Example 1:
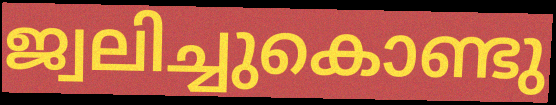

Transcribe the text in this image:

ജ്വലിച്ചുകൊണ്ടു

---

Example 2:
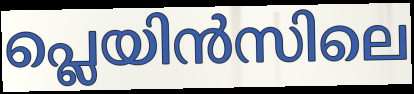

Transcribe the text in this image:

പ്ലെയിൻസിലെ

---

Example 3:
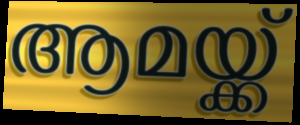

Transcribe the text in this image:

ആമയ്ക്ക്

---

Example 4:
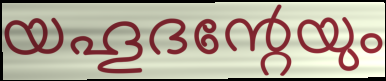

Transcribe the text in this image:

യഹൂദന്റേയും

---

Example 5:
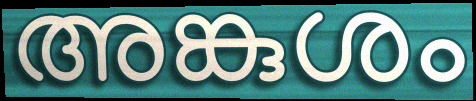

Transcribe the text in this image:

അങ്കുശം